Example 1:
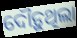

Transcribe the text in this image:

ଦୌଡ଼ୁଥିଲା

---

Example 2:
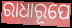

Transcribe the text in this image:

ରାଧାରୂପେ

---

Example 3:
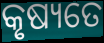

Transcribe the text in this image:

କୃଷ୍ୟତେ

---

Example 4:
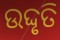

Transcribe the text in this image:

ଉଦ୍ଦୃତି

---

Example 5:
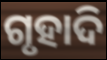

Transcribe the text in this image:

ଗୃହାଦି